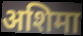
अशिमा